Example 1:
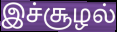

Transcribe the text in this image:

இச்சூழல்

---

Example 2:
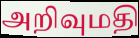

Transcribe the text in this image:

அறிவுமதி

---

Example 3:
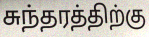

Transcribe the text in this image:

சுந்தரத்திற்கு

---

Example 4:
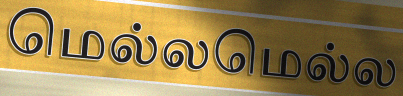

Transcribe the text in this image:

மெல்லமெல்ல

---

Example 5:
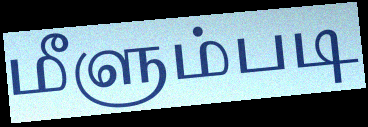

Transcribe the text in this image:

மீளும்படி